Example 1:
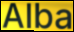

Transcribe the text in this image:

Alba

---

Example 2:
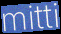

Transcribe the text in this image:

mitti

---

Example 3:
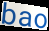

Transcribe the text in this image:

bao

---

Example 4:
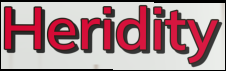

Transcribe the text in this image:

Heridity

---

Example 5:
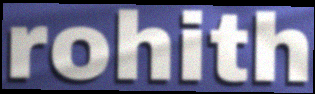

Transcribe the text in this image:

rohith